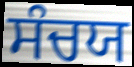
ਸੰਚਯ